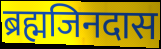
ब्रह्मजिनदास